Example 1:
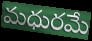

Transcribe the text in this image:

మధురమే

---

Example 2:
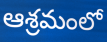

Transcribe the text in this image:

ఆశ్రమంలో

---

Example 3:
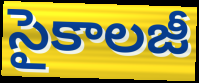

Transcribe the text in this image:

సైకాలజీ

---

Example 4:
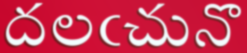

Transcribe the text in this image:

దలఁచునొ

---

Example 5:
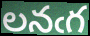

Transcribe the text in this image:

లనఁగ